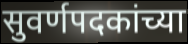
सुवर्णपदकांच्या